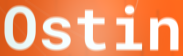
Ostin